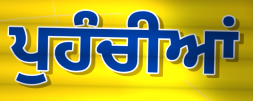
ਪੁਹੰਚੀਆਂ